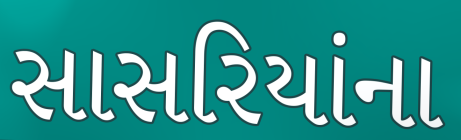
સાસરિયાંના